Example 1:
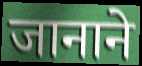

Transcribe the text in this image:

जानाने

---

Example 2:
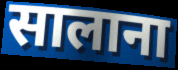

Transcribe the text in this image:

सालाना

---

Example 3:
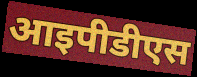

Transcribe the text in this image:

आइपीडीएस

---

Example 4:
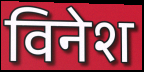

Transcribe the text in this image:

विनेश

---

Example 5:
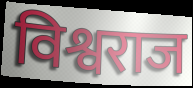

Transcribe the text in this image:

विश्वराज